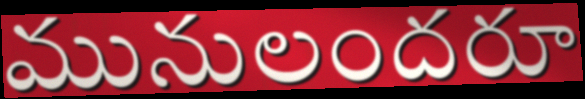
మునులందరూ